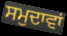
ਸਮੁਦਾਵਾਂ